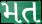
મત